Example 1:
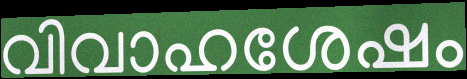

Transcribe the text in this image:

വിവാഹശേഷം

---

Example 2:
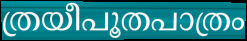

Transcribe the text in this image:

ത്രയീപൂതപാത്രം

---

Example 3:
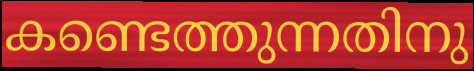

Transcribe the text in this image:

കണ്ടെത്തുന്നതിനു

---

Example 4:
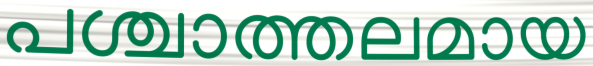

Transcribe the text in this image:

പശ്ചാത്തലമായ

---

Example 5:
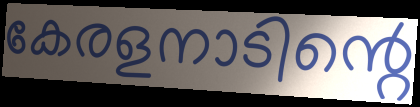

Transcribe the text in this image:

കേരളനാടിന്റെ